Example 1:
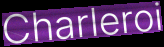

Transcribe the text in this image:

Charleroi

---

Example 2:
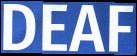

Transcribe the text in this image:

DEAF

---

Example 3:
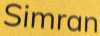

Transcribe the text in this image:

Simran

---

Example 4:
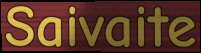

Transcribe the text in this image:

Saivaite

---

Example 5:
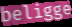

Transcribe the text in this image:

beligge